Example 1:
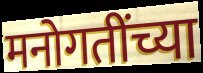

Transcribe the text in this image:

मनोगतींच्या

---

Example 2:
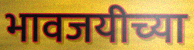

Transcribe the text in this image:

भावजयीच्या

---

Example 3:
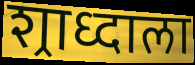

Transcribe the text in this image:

श्राध्दाला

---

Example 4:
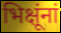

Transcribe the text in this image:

भिक्षूंनां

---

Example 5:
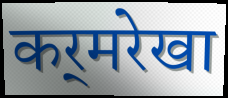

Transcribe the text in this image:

कर्मरेखा